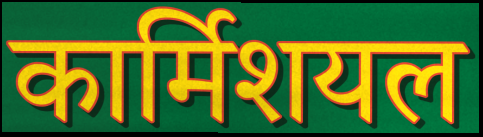
कार्मिशयल